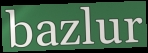
bazlur